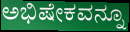
ಅಭಿಷೇಕವನ್ನೂ